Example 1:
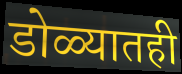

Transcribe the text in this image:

डोळ्यातही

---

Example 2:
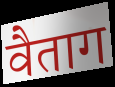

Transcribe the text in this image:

वैताग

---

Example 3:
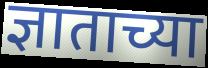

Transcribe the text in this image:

ज्ञाताच्या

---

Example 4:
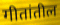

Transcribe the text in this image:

गीतांतील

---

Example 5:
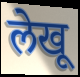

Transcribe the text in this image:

लेखू